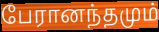
பேரானந்தமும்